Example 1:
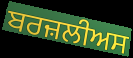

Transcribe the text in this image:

ਬਰਜ਼ਲੀਅਸ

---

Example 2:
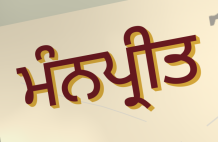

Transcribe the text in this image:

ਮੰਨਪ੍ਰੀਤ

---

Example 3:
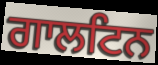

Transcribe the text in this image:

ਗਾਲਟਿਨ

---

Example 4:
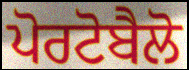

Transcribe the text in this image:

ਪੋਰਟੋਬੈਲੋ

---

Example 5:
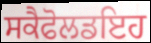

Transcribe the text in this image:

ਸਕੈਫੋਲਡਇਹ